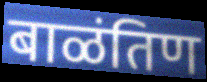
बाळंतिण